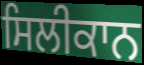
ਸਿਲੀਕਾਨ